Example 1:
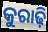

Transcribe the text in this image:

କୁରାଢ଼ି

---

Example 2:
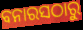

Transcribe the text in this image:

ବନାରସଠାରୁ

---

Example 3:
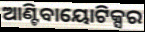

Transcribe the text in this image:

ଆଣ୍ଟିବାୟୋଟିକ୍ସର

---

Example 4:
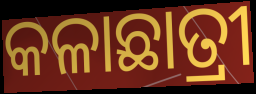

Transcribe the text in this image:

କଳାଛାତ୍ରୀ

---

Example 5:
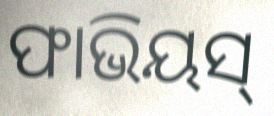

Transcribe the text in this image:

ଫାଭିୟସ୍